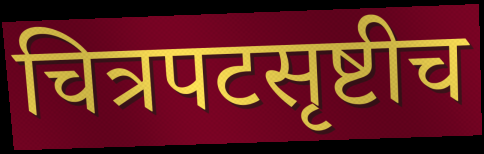
चित्रपटसृष्टीच